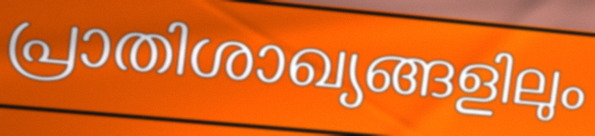
പ്രാതിശാഖ്യങ്ങളിലും